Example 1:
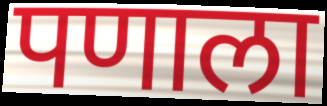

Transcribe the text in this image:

पणाला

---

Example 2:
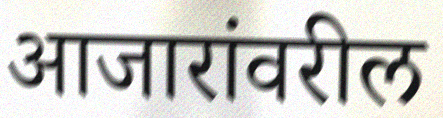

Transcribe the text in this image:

आजारांवरील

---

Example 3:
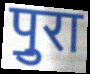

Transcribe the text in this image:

पु॒रा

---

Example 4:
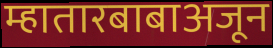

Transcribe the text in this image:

म्हातारबाबाअजून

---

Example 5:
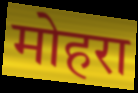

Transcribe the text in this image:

मोहरा